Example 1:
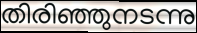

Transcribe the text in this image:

തിരിഞ്ഞുനടന്നു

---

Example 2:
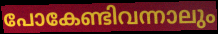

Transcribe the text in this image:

പോകേണ്ടിവന്നാലും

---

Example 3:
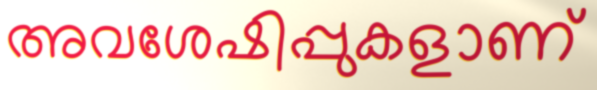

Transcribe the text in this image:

അവശേഷിപ്പുകളാണ്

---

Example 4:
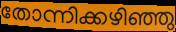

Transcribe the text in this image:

തോന്നിക്കഴിഞ്ഞു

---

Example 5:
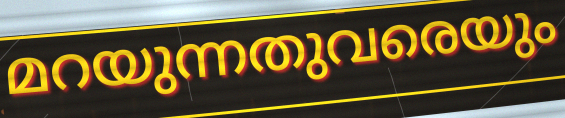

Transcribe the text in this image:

മറയുന്നതുവരെയും